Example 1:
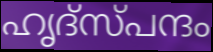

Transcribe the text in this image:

ഹൃദ്സ്പന്ദം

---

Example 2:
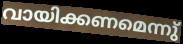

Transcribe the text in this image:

വായിക്കണമെന്നു്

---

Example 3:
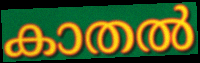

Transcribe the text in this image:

കാതൽ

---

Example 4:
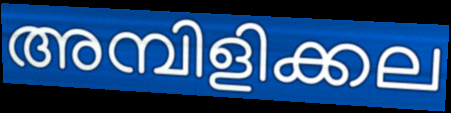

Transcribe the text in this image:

അമ്പിളിക്കല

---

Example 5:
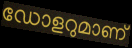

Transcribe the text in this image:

ഡോളറുമാണ്